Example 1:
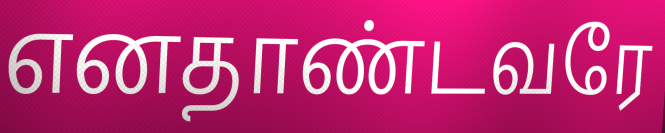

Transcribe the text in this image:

எனதாண்டவரே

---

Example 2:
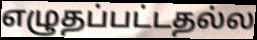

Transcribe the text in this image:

எழுதப்பட்டதல்ல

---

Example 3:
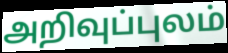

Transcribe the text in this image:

அறிவுப்புலம்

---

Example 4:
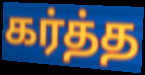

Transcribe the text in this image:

கர்த்த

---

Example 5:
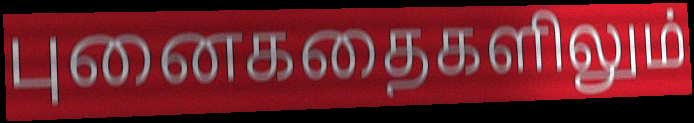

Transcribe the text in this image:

புனைகதைகளிலும்